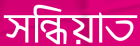
সন্ধিয়াত